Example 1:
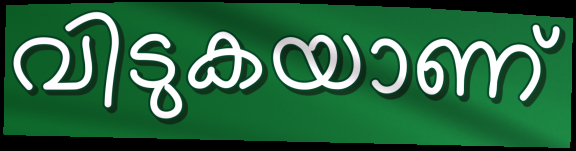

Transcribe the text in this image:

വിടുകയാണ്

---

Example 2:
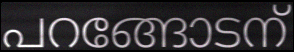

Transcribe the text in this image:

പറങ്ങോടന്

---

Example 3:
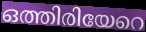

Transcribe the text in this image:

ഒത്തിരിയേറെ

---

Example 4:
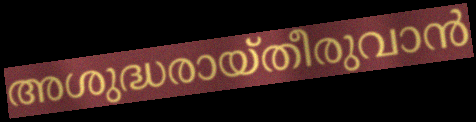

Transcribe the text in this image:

അശുദ്ധരായ്തീരുവാൻ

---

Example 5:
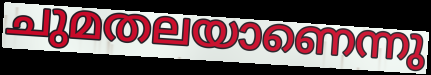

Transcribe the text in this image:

ചുമതലയാണെന്നു